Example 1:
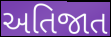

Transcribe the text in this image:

અતિજાત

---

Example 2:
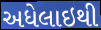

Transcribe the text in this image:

અધેલાઇથી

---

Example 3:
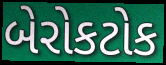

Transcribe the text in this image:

બેરોકટોક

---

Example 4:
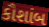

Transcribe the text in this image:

કૌશાંબ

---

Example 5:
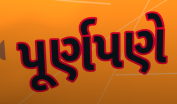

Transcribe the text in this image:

પૂર્ણપણે